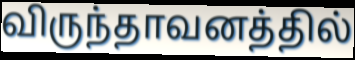
விருந்தாவனத்தில்